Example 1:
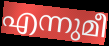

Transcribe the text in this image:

എന്നുമീ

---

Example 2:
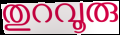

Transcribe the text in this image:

തുറവൂരു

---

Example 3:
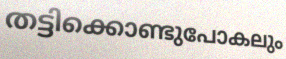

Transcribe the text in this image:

തട്ടിക്കൊണ്ടുപോകലും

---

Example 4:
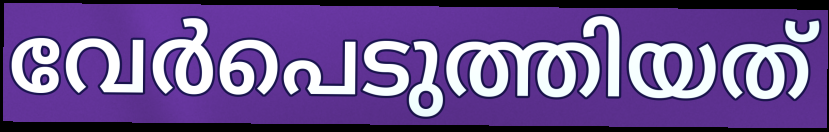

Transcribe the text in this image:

വേർപെടുത്തിയത്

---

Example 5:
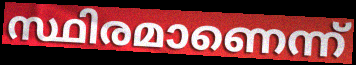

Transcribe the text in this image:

സ്ഥിരമാണെന്ന്